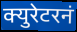
क्युरेटरनं